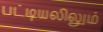
பட்டியலிலும்